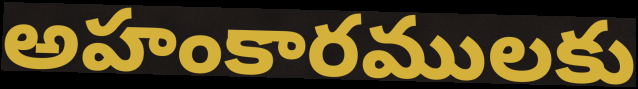
అహంకారములకు